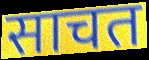
साचत